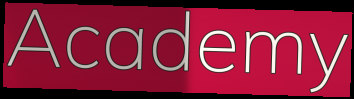
Academy